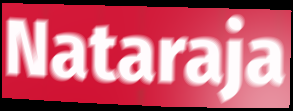
Nataraja